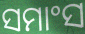
ସମାଂସ